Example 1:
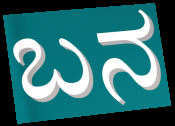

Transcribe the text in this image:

ಬನ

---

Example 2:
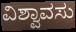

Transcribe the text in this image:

ವಿಶ್ವಾವಸು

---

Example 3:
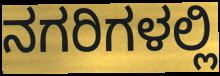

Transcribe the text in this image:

ನಗರಿಗಳಲ್ಲಿ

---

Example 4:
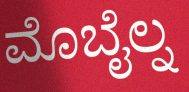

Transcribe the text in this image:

ಮೊಬೈಲ್ನ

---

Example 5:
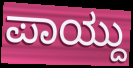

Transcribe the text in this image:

ಪಾಯ್ದು